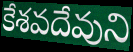
కేశవదేవుని